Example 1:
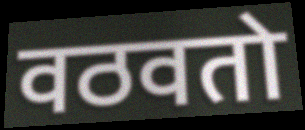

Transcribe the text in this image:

वठवतो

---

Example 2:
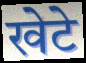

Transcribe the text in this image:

खेटे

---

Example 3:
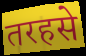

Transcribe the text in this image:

तरहसे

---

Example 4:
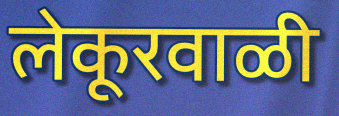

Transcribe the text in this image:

लेकूरवाळी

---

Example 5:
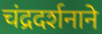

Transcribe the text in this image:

चंद्रदर्शनाने